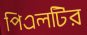
পিএলটির